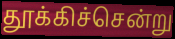
தூக்கிச்சென்று